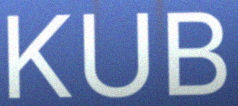
KUB